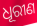
ଧୂରୀଣ